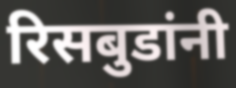
रिसबुडांनी